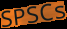
SPSCs